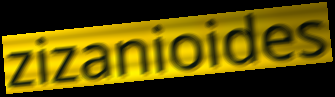
zizanioides